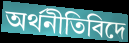
অৰ্থনীতিবিদে